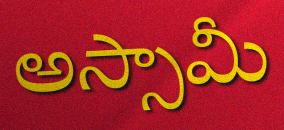
అస్సామీ